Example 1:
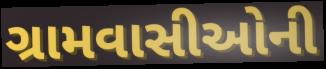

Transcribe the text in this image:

ગ્રામવાસીઓની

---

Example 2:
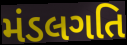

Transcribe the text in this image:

મંડલગતિ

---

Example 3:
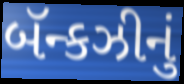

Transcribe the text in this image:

બૅન્કઝીનું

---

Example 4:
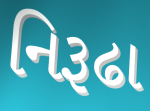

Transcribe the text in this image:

નિરૂઢા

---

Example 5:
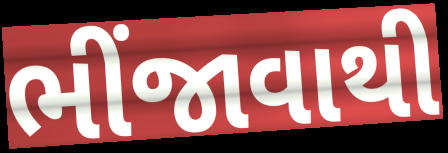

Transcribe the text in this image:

ભીંજાવાથી